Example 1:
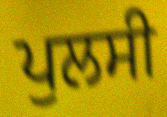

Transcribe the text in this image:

ਪੁਲਸੀ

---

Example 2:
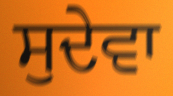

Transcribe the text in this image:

ਸੁਦੇਵਾ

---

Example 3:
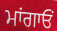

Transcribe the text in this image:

ਮਾਂਗਾਓਂ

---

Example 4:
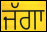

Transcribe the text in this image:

ਜੱਗਾ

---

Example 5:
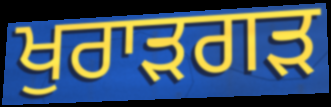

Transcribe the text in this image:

ਖੁਰਾੜਗੜ